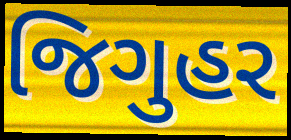
જિગુહર